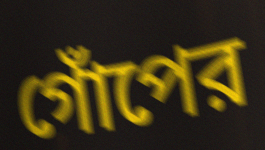
গোঁপের